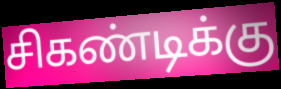
சிகண்டிக்கு